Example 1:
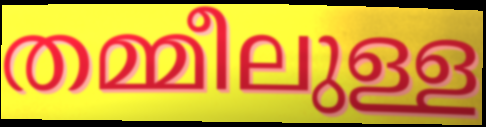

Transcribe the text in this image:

തമ്മീലുള്ള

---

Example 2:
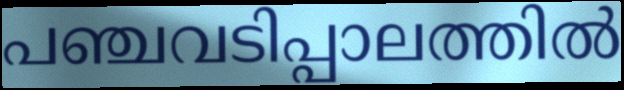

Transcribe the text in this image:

പഞ്ചവടിപ്പാലത്തിൽ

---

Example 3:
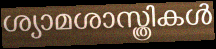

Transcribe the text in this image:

ശ്യാമശാസ്ത്രികൾ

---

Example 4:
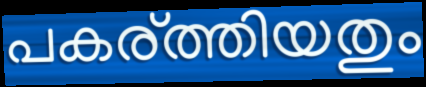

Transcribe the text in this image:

പകര്ത്തിയതും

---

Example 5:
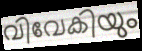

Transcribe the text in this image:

വിവേകിയും